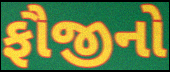
ફૌજીનો